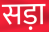
सड़ा